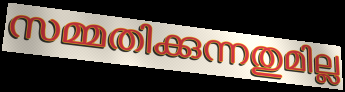
സമ്മതിക്കുന്നതുമില്ല